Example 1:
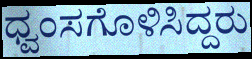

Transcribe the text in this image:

ಧ್ವಂಸಗೊಳಿಸಿದ್ದರು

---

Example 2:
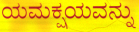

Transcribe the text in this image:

ಯಮಕ್ಷಯವನ್ನು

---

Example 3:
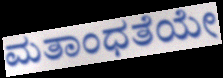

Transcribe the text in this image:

ಮತಾಂಧತೆಯೇ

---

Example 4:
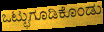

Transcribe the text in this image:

ಒಟ್ಟುಗೂಡಿಕೊಂಡು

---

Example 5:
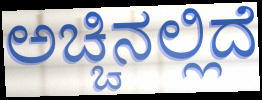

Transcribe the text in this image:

ಅಚ್ಚಿನಲ್ಲಿದೆ